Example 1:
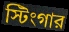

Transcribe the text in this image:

স্টিংগার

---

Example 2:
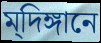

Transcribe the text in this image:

ম্‌দিঙ্গানে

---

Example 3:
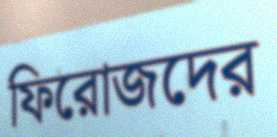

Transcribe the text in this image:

ফিরোজদের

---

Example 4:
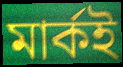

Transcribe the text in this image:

মার্কই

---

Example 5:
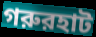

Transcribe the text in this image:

গরুরহাট